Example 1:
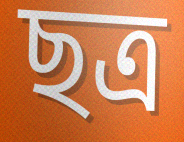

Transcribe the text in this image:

ছত্ৰ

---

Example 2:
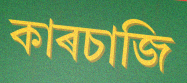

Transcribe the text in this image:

কাৰচাজি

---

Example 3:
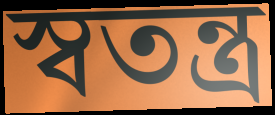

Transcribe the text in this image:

স্ৱতন্ত্ৰ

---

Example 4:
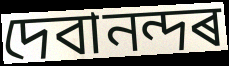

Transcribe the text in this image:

দেবানন্দৰ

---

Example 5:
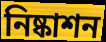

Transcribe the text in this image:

নিষ্কাশন